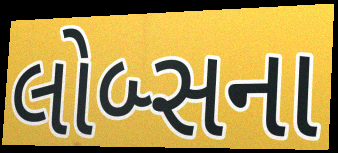
લોબ્સના